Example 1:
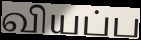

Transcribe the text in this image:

வியப்ப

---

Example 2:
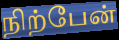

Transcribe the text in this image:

நிற்பேன்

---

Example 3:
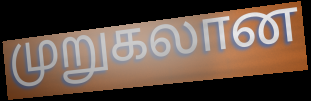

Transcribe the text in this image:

முறுகலான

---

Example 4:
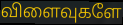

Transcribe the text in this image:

விளைவுகளே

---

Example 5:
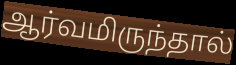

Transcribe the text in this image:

ஆர்வமிருந்தால்